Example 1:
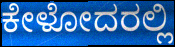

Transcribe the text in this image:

ಕೇಳೋದರಲ್ಲಿ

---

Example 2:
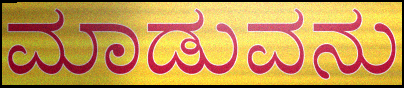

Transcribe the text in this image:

ಮಾಡುವನು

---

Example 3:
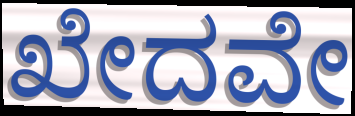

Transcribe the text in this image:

ಖೇದವೇ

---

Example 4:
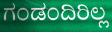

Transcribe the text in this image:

ಗಂಡಂದಿರಿಲ್ಲ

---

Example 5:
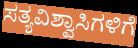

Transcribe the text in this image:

ಸತ್ಯವಿಶ್ವಾಸಿಗಳಿಗೆ